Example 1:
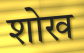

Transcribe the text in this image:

शोख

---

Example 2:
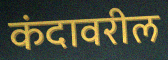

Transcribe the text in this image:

कंदावरील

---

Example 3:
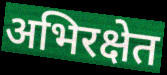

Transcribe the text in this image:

अभिरक्षेत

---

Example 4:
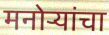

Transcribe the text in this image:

मनोर्‍यांचा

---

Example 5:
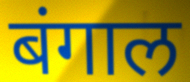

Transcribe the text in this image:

बंगाल